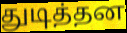
துடித்தன